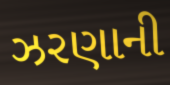
ઝરણાની